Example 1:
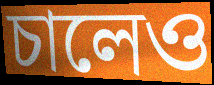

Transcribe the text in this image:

চালেও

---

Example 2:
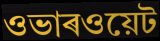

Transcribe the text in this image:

ওভাৰওয়েট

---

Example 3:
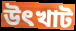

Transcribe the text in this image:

উৎখাট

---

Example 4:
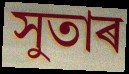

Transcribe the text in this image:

সুতাৰ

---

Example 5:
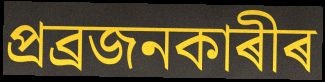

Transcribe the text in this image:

প্ৰব্ৰজনকাৰীৰ